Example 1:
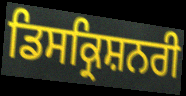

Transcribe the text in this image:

ਡਿਸਕ੍ਰਿਸ਼ਨਰੀ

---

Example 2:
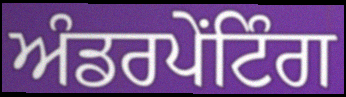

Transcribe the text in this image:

ਅੰਡਰਪੇਂਟਿੰਗ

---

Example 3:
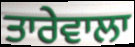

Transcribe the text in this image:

ਤਾਰੇਵਾਲਾ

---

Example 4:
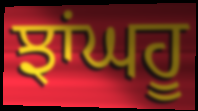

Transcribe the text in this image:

ਝਾਂਘਹੂ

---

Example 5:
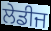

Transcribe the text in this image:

ਲੇਡੀਜ